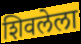
शिवलेला